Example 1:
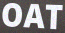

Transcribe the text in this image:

OAT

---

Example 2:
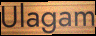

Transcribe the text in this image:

Ulagam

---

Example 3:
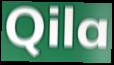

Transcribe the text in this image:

Qila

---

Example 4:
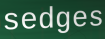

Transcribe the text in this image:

sedges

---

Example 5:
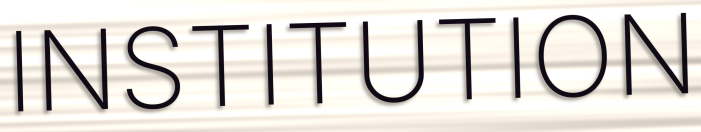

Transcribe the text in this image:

INSTITUTION